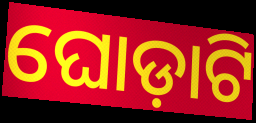
ଘୋଡ଼ାଟି